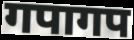
गपागप